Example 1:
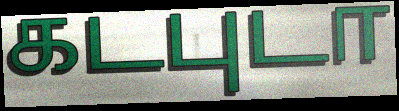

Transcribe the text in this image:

கடபுடா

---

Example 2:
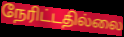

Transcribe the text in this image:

நேரிட்டதில்லை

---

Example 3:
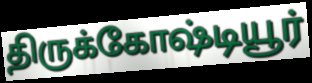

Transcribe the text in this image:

திருக்கோஷ்டியூர்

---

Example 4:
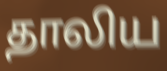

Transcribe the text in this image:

தாலிய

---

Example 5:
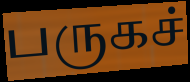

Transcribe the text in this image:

பருகச்